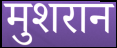
मुशरान